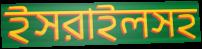
ইসরাইলসহ